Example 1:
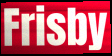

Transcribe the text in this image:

Frisby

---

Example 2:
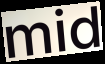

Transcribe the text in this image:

mid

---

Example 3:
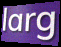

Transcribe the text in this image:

larg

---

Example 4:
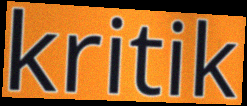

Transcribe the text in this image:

kritik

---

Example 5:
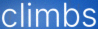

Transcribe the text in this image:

climbs